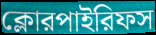
ক্লোরপাইরিফস